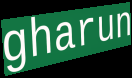
gharun